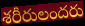
శరీరులందరు